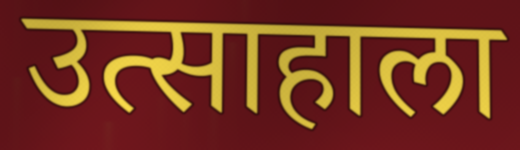
उत्साहाला